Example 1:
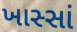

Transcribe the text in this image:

ખાસ્સાં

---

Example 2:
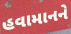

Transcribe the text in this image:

હવામાનને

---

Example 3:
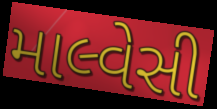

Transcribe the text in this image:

માલ્વેસી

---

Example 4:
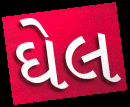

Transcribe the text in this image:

ઘેલ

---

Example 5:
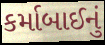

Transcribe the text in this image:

કર્માબાઈનું